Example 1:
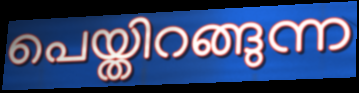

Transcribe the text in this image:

പെയ്തിറങ്ങുന്ന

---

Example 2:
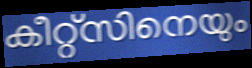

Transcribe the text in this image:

കീറ്റ്സിനെയും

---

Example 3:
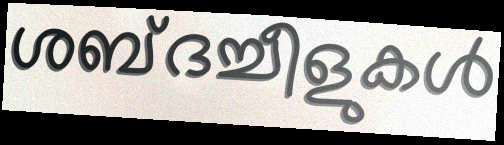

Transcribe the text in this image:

ശബ്ദച്ചീളുകൾ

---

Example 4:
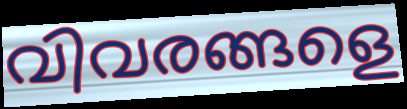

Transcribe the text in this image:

വിവരങ്ങളെ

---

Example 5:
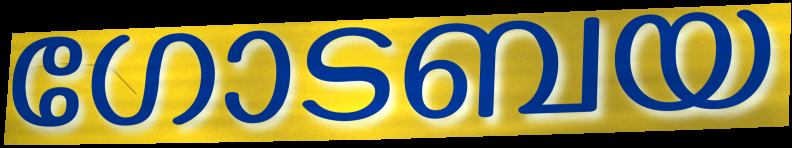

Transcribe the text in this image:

ഗോടബയ